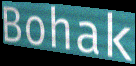
Bohak